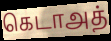
கெடாஅத்